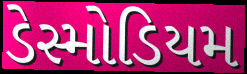
ડેસ્મોડિયમ